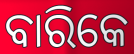
ବାରିକେ